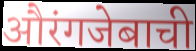
औरंगजेबाची